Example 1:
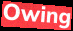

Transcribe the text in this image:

Owing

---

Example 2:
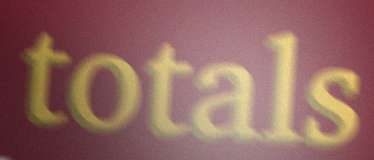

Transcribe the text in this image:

totals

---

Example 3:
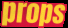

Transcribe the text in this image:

props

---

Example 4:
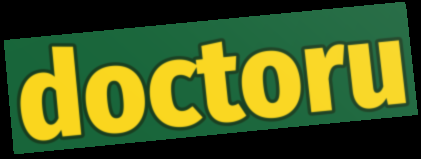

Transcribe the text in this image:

doctoru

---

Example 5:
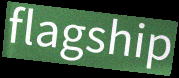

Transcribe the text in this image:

flagship